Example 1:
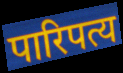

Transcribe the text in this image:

पारिपत्य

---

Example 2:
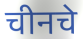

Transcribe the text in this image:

चीनचे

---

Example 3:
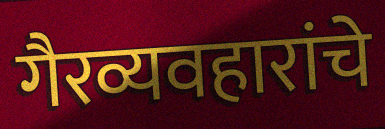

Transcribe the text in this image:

गैरव्यवहारांचे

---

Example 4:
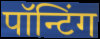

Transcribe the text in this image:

पॉन्टिंग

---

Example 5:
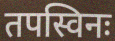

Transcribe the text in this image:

तपस्विनः